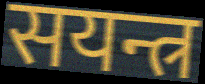
सयन्त्र